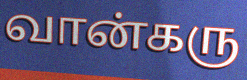
வான்கரு